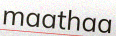
maathaa